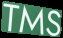
TMS